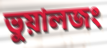
ভুয়ালজং